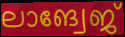
ലാങ്വേജ്